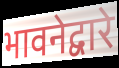
भावनेद्वारे